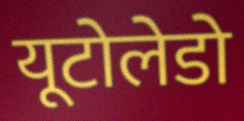
यूटोलेडो